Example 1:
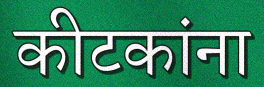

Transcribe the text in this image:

कीटकांना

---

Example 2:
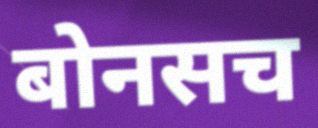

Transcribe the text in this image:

बोनसच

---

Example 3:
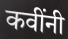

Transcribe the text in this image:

कवींनी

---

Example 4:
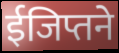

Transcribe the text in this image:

ईजिप्तने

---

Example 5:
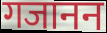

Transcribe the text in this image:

गजानन